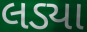
લડ્યા